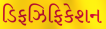
ડિફઝિફિકેશન